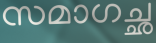
സമാഗച്ഛ